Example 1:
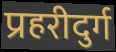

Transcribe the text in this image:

प्रहरीदुर्ग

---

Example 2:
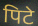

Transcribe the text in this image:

पिटे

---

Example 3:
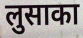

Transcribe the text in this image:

लुसाका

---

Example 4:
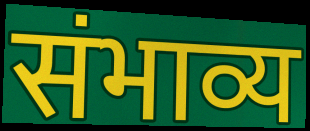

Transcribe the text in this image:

संभाव्य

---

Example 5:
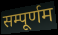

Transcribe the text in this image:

सम्पूर्णम